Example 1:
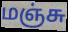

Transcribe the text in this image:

மஞ்சு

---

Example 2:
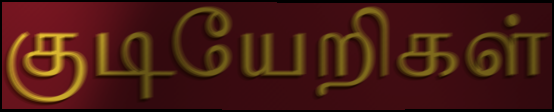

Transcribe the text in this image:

குடியேறிகள்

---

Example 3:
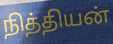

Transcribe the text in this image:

நித்தியன்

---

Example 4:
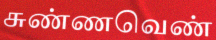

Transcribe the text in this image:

சுண்ணவெண்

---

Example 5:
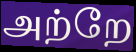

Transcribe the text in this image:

அற்றே